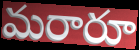
మరారూ